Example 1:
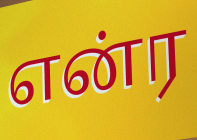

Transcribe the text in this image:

என்ர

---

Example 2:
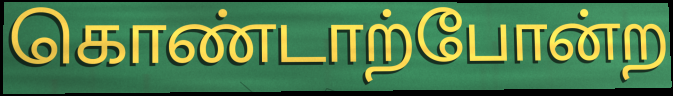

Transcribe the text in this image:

கொண்டாற்போன்ற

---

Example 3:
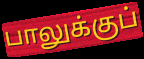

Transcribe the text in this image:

பாலுக்குப்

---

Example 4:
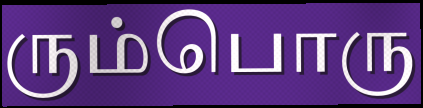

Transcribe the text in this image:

ரும்பொரு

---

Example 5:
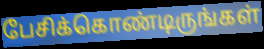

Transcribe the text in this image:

பேசிக்கொண்டிருங்கள்